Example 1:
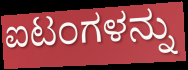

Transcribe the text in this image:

ಐಟಂಗಳನ್ನು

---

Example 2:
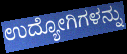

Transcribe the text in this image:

ಉದ್ಯೋಗಿಗಳನ್ನು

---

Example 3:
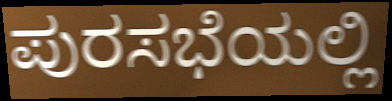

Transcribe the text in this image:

ಪುರಸಭೆಯಲ್ಲಿ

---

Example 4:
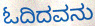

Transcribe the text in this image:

ಓದಿದವನು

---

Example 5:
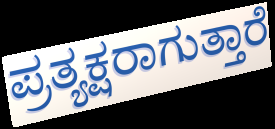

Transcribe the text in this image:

ಪ್ರತ್ಯಕ್ಷರಾಗುತ್ತಾರೆ